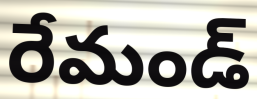
రేమండ్